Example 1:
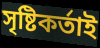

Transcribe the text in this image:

সৃষ্টিকৰ্তাই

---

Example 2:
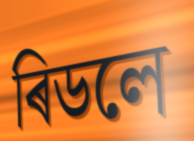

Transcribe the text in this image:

ৰিডলে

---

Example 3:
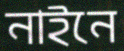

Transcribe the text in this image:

নাইনে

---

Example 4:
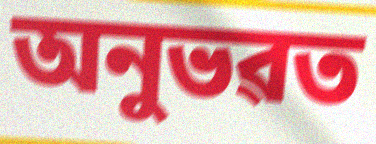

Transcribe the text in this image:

অনুভৱত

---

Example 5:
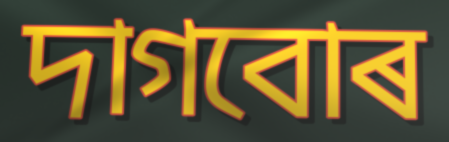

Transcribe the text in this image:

দাগবোৰ